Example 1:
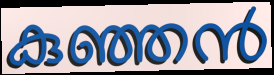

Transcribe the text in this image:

കുഞ്ഞൻ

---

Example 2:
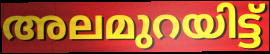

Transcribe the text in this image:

അലമുറയിട്ട്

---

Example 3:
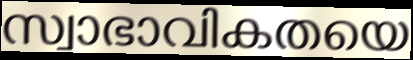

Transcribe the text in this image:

സ്വാഭാവികതയെ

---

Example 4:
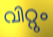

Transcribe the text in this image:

വിറ്റും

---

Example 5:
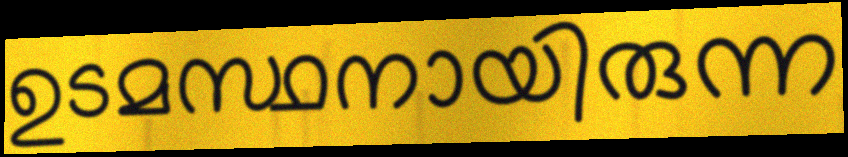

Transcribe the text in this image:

ഉടമസ്ഥനായിരുന്ന